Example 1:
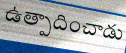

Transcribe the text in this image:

ఉత్పాదించాడు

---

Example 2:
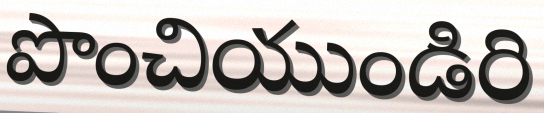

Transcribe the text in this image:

పొంచియుండిరి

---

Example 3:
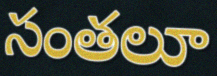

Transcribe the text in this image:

సంతలూ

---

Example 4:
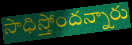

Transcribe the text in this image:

సాధిస్తోందన్నారు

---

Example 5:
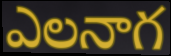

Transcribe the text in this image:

ఎలనాగ